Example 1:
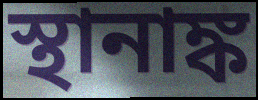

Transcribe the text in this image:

স্থানাঙ্ক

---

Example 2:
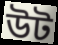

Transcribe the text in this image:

উট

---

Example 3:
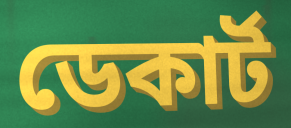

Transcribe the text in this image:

ডেকাৰ্ট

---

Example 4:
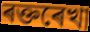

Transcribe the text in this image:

ৰক্তৰেখা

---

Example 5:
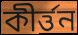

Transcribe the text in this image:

কীৰ্ত্তন